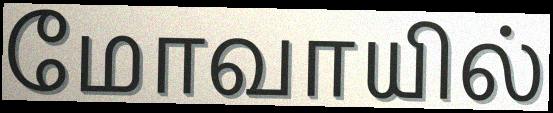
மோவாயில்